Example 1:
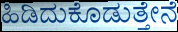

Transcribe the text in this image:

ಹಿಡಿದುಕೊಡುತ್ತೇನೆ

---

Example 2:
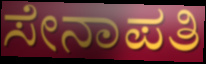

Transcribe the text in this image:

ಸೇನಾಪತಿ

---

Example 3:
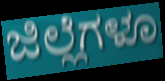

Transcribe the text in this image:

ಜಿಲ್ಲೆಗಳೂ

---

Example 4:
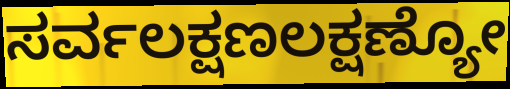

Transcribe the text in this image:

ಸರ್ವಲಕ್ಷಣಲಕ್ಷಣ್ಯೋ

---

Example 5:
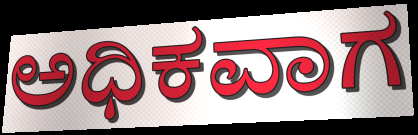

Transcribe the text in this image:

ಅಧಿಕವಾಗ